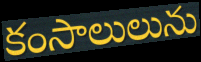
కంసాలులును